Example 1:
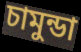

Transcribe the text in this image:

চামুন্ডা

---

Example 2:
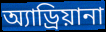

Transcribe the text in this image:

অ্যাড্রিয়ানা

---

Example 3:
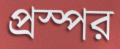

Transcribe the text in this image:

প্রস্পর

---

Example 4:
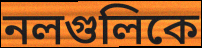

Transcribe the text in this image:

নলগুলিকে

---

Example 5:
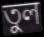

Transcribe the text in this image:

তুল